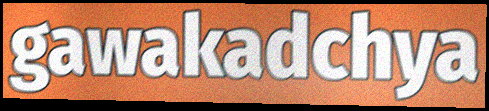
gawakadchya